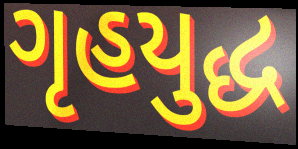
ગૃહયુદ્ધ